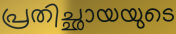
പ്രതിച്ഛായയുടെ